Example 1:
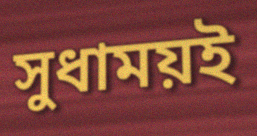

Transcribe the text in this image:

সুধাময়ই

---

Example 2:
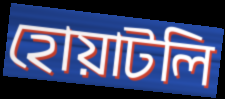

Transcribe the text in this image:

হোয়াটলি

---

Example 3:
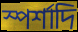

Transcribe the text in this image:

স্পর্শাদি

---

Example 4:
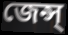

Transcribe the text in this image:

জেন্স্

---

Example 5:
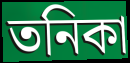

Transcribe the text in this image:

তনিকা